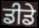
ਡੀਡੇ